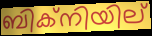
ബിക്നിയില്